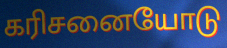
கரிசனையோடு